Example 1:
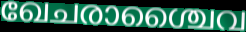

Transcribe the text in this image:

ഖേചരാശ്ചൈവ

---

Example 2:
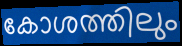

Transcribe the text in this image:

കോശത്തിലും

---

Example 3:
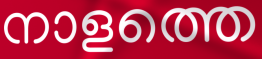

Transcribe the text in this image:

നാളത്തെ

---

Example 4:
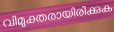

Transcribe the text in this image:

വിമുക്തരായിരിക്കുക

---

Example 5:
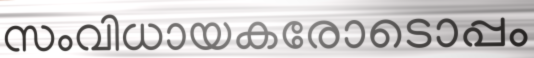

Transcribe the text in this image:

സംവിധായകരോടൊപ്പം